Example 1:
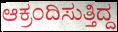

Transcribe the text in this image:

ಆಕ್ರಂದಿಸುತ್ತಿದ್ದ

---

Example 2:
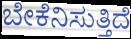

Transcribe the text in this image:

ಬೇಕೆನಿಸುತ್ತಿದೆ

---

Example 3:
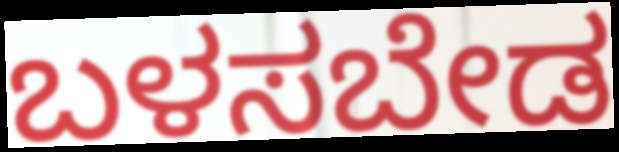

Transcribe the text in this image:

ಬಳಸಬೇಡ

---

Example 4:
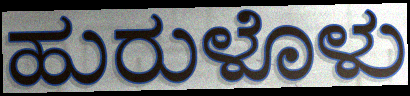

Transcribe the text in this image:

ಹುರುಳೊಳು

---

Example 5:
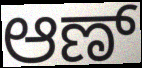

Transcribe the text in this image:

ಆಣ್